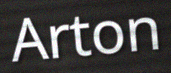
Arton